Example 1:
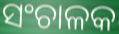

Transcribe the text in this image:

ସଂଚାଳକ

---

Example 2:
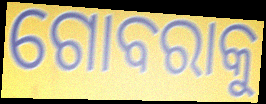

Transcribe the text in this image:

ଗୋବରାକୁ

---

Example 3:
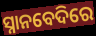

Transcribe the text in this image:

ସ୍ନାନବେଦିରେ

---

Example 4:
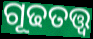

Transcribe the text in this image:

ଗୂଢତତ୍ତ୍ୱ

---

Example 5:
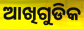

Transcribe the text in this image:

ଆଖିଗୁଡିକ